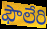
ఫౌలేరి